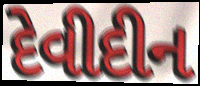
દેવીદીન